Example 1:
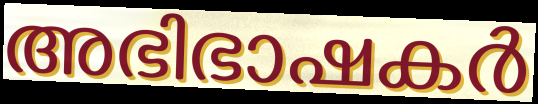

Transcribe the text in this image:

അഭിഭാഷകർ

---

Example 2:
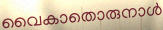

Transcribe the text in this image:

വൈകാതൊരുനാൾ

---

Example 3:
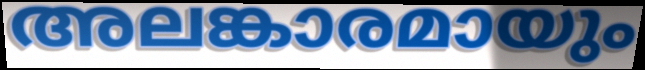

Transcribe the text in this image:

അലങ്കാരമായും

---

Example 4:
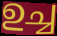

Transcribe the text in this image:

ഉച്ച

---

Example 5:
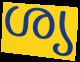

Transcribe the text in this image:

ശ്യ